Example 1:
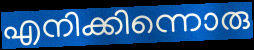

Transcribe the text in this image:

എനിക്കിന്നൊരു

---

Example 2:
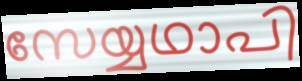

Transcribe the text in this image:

സേയ്യഥാപി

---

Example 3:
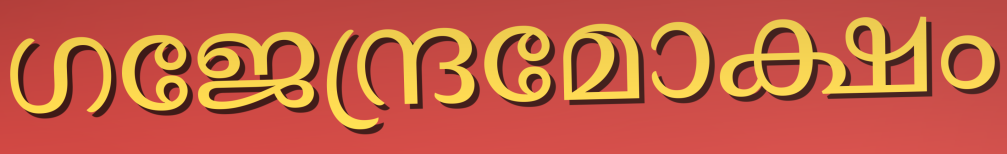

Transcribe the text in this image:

ഗജേന്ദ്രമോക്ഷം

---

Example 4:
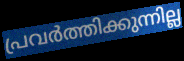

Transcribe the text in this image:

പ്രവർത്തിക്കുന്നില്ല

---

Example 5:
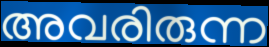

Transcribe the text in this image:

അവരിരുന്ന